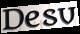
Desu